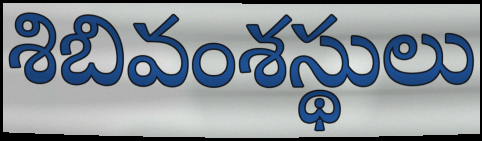
శిబివంశస్థులు